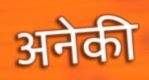
अनेकी